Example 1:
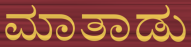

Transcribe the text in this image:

ಮಾತಾಡು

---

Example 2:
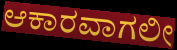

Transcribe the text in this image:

ಆಕಾರವಾಗಲೀ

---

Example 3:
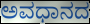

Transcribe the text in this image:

ಅವಧಾನದ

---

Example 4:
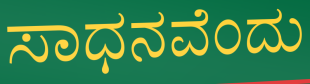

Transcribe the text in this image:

ಸಾಧನವೆಂದು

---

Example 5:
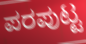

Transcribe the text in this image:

ಪರಪುಟ್ಟ